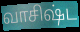
வாசிஷ்ட